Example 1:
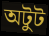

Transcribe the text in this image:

অটুট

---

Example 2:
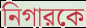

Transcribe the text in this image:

নিগারকে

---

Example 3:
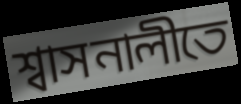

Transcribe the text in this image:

শ্বাসনালীতে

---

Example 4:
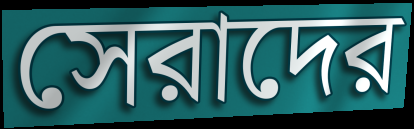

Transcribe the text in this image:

সেরাদের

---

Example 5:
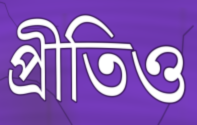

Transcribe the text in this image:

প্রীতিও